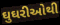
ઘુઘરીઓથી